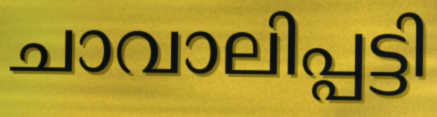
ചാവാലിപ്പട്ടി